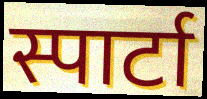
स्पार्टा